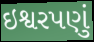
ઇશ્વરપણું